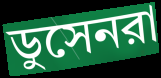
ডুসেনরা